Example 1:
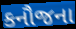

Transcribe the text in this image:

કનૌજના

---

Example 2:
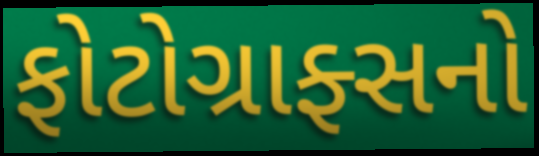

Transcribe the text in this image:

ફોટોગ્રાફ્સનો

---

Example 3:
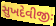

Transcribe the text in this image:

સુખદેવીજીઃ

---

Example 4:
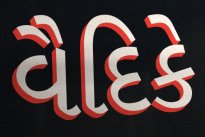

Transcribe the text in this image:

વૈદિકે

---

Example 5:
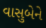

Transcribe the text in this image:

વાસુબેને